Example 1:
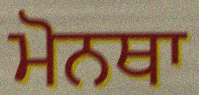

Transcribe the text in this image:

ਮੋਨਥਾ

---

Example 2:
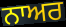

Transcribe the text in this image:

ਨਾਅਰ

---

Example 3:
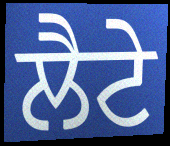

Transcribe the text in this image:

ਲੈਟੇ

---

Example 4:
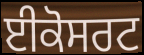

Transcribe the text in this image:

ਈਕੋਸਰਟ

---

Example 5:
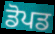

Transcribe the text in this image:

ਡੋਪਡ